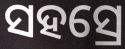
ସହସ୍ରେ